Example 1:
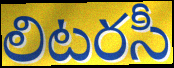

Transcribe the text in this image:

లిటరసీ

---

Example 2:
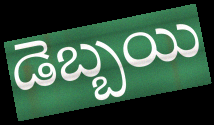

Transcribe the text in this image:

డెబ్బయి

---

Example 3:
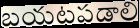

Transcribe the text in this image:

బయటపడాలి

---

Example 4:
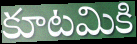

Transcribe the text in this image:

కూటమికి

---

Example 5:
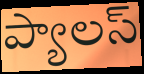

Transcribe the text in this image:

ప్యాలస్